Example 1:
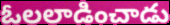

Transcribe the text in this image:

ఓలలాడించాడు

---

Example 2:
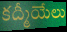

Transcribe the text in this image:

కద్మీయేలు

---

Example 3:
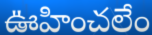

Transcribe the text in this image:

ఊహించలేం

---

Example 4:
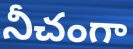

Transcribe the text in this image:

నీచంగా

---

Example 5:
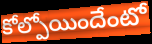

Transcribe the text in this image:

కోల్పోయిందేంటో